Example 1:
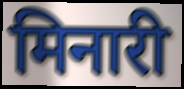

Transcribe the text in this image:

मिनारी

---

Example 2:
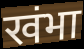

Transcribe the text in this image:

खंभा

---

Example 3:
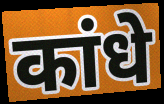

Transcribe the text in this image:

कांधे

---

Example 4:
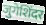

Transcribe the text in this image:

जुगेशिंदर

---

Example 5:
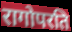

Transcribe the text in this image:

रागोपरति